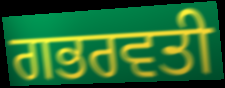
ਗਭਰਵਤੀ